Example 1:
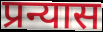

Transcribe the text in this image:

प्रन्यास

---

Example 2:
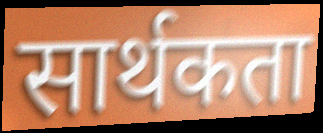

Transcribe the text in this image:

सार्थकता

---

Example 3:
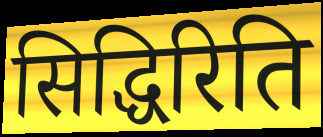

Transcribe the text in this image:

सिद्धिरिति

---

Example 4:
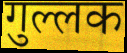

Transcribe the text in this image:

गुल्लक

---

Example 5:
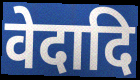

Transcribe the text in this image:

वेदादि